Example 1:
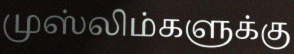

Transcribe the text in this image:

முஸ்லிம்களுக்கு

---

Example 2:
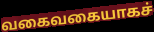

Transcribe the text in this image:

வகைவகையாகச்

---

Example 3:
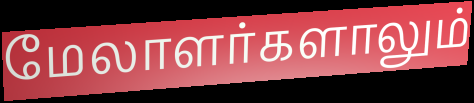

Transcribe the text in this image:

மேலாளர்களாலும்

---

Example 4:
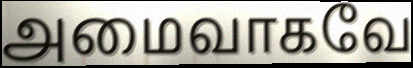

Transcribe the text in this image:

அமைவாகவே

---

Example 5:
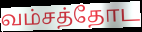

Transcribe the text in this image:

வம்சத்தோட